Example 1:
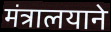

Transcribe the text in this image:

मंत्रालयाने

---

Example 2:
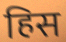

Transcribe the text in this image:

हिस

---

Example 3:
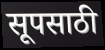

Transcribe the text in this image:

सूपसाठी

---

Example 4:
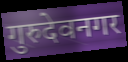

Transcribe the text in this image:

गुरुदेवनगर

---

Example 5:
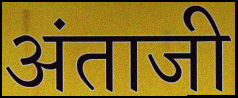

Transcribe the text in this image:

अंताजी